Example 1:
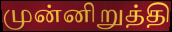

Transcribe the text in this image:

முன்னிறுத்தி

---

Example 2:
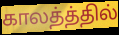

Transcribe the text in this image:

காலத்த்தில்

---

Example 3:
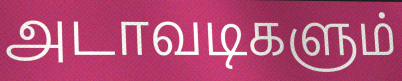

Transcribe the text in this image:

அடாவடிகளும்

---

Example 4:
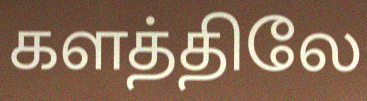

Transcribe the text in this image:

களத்திலே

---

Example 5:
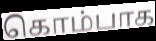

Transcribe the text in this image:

கொம்பாக